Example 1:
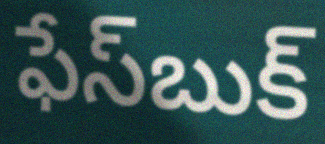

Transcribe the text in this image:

ఫేస్‌బుక్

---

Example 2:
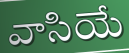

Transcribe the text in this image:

వాసియే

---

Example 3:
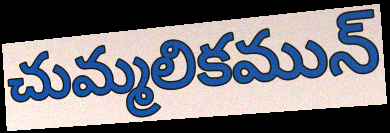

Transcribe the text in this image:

చుమ్మలికమున్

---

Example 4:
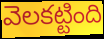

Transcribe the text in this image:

వెలకట్టింది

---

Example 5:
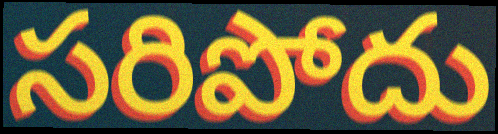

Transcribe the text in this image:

సరిపోదు